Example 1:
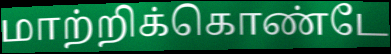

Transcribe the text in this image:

மாற்றிக்கொண்டே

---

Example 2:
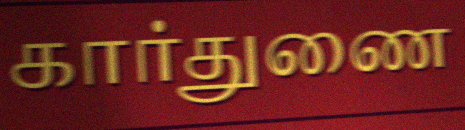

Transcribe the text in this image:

கார்துணை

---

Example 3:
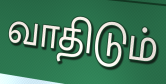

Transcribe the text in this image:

வாதிடும்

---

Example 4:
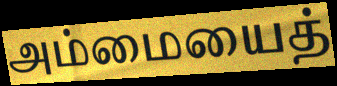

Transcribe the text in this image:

அம்மையைத்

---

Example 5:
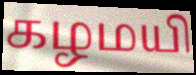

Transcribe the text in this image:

கழமயி